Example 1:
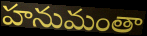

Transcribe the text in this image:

హనుమంతా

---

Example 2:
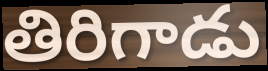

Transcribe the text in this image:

తిరిగాడు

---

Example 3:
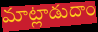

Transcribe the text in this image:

మాట్లాడుదాం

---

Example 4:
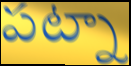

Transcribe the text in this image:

పట్నా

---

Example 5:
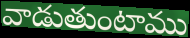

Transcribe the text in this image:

వాడుతుంటాము